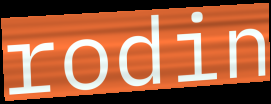
rodin